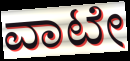
ವಾಟೇ